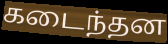
கடைந்தன